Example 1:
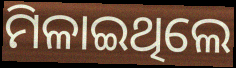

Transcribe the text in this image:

ମିଳାଇଥିଲେ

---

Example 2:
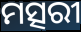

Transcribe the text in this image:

ମତ୍ସରୀ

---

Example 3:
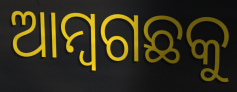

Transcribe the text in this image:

ଆମ୍ବଗଛକୁ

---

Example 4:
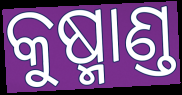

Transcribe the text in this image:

କୁଷ୍ମାଣ୍ଡ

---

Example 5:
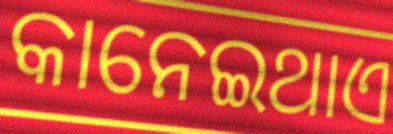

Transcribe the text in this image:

କାନେଇଥାଏ